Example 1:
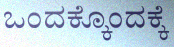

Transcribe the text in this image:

ಒಂದಕ್ಕೊಂದಕ್ಕೆ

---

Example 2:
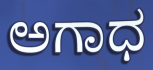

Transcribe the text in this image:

ಅಗಾಧ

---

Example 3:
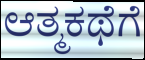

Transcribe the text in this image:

ಆತ್ಮಕಥೆಗೆ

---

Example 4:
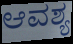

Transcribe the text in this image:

ಆವಶ್ಯ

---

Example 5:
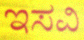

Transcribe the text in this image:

ಇಸವಿ